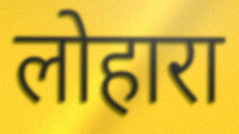
लोहारा